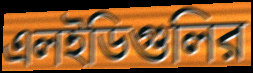
এলইডিগুলির